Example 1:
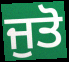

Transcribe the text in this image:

ਜੁਤੋ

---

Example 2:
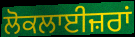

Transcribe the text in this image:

ਲੋਕਲਾਈਜ਼ਰਾਂ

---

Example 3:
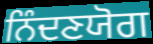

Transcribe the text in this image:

ਨਿੰਦਣਯੋਗ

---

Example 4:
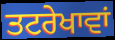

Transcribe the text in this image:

ਤਟਰੇਖਾਵਾਂ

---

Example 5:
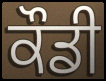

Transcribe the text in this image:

ਕੌਡੀ